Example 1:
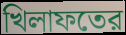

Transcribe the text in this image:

খিলাফতের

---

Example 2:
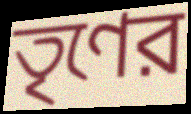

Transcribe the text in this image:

তৃণের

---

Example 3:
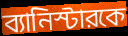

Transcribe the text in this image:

ব্যানিস্টারকে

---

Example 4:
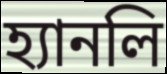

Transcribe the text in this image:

হ্যানলি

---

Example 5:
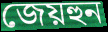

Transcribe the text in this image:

জেয়হুন